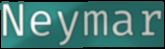
Neymar